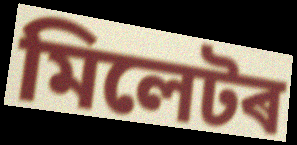
মিলেটৰ